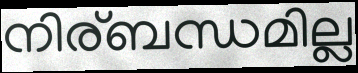
നിര്ബന്ധമില്ല